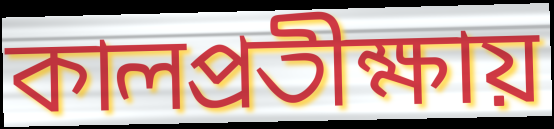
কালপ্রতীক্ষায়